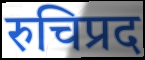
रुचिप्रद